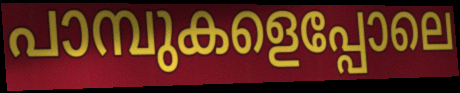
പാമ്പുകളെപ്പോലെ